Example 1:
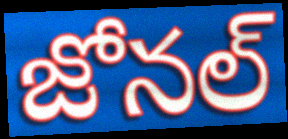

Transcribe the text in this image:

జోనల్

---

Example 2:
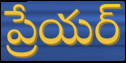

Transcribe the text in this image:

ప్రేయర్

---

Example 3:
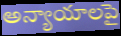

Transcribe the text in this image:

అన్యాయాలపై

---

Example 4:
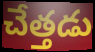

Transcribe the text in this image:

చేత్తడు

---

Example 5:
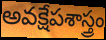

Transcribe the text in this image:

అవక్షేపశాస్త్రం